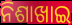
ନିଶାଖାଇ